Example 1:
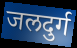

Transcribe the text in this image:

जलदुर्ग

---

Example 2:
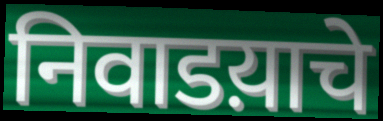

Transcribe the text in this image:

निवाडय़ाचे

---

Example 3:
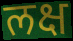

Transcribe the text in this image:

लक्ष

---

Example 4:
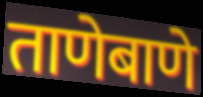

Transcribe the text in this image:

ताणेबाणे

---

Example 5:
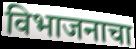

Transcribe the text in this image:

विभाजनाचा